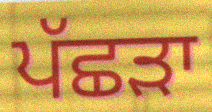
ਪੱਛੜਾ